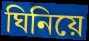
ঘিনিয়ে